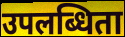
उपलब्धिता